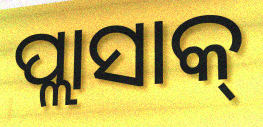
ପ୍ଲାସାକ୍